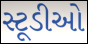
સ્ટૂડીઓ